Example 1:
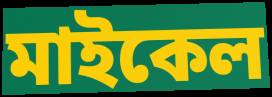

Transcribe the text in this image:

মাইকেল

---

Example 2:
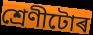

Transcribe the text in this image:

শ্ৰেণীটোৰ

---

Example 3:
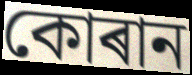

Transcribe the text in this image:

কোৰান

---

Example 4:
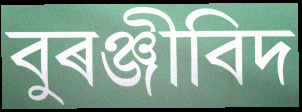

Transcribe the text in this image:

বুৰঞ্জীবিদ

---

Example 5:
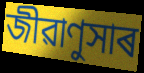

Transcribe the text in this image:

জীৱাণুসাৰ